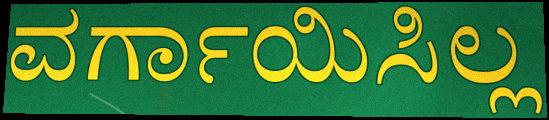
ವರ್ಗಾಯಿಸಿಲ್ಲ